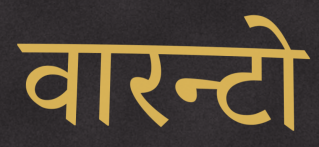
वारन्टो